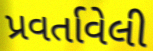
પ્રવર્તાવેલી